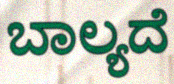
ಬಾಲ್ಯದೆ